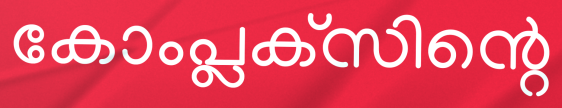
കോംപ്ലക്‌സിന്റെ